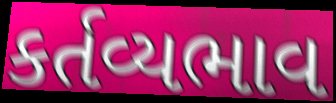
કર્તવ્યભાવ